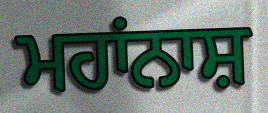
ਮਹਾਂਨਾਸ਼